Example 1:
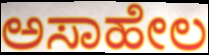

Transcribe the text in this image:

ಅಸಾಹೇಲ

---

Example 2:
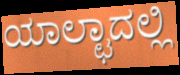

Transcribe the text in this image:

ಯಾಲ್ಟಾದಲ್ಲಿ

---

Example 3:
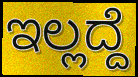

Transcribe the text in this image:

ಇಲ್ಲದ್ದೆ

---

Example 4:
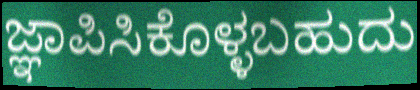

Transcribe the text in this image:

ಜ್ಞಾಪಿಸಿಕೊಳ್ಳಬಹುದು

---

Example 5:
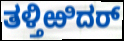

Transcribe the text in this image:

ತಳ್ತಿಱಿದರ್